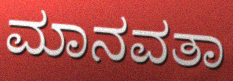
ಮಾನವತಾ